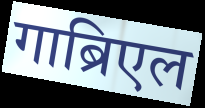
गाब्रिएल